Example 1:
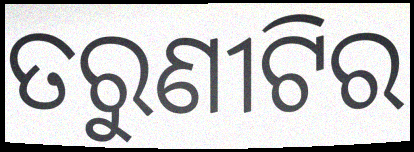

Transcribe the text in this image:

ତରୁଣୀଟିର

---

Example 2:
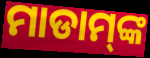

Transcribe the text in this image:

ମାଡାମ୍‌ଙ୍କ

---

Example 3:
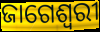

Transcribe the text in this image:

ଜାଗେଶ୍ୱରୀ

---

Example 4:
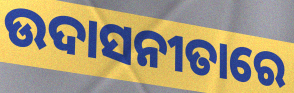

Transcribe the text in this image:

ଉଦାସନୀତାରେ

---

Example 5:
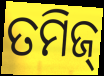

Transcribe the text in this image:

ତମିଜ୍